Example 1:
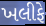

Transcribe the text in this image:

ખલીફે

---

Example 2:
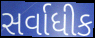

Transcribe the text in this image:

સર્વાધીક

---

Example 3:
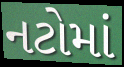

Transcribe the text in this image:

નટોમાં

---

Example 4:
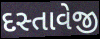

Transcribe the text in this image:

દસ્તાવેજી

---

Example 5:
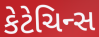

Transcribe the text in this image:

કેટેચિન્સ